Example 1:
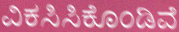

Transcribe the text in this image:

ವಿಕಸಿಸಿಕೊಂಡಿವೆ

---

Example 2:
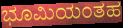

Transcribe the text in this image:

ಭೂಮಿಯಂತಹ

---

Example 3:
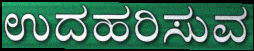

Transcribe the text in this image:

ಉದಹರಿಸುವ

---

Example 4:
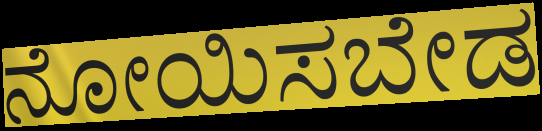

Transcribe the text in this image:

ನೋಯಿಸಬೇಡ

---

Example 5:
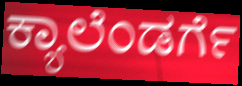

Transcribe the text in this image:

ಕ್ಯಾಲೆಂಡರ್ಗೆ